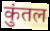
कुंतल